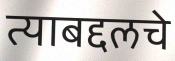
त्याबद्दलचे